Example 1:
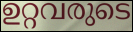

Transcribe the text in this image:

ഉറ്റവരുടെ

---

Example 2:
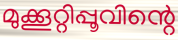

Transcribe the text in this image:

മുക്കൂറ്റിപ്പൂവിന്റെ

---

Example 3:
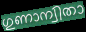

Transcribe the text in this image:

ഗുണാന്വിതാ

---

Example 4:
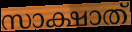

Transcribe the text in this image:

സാക്ഷാത്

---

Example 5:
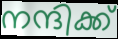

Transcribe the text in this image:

നന്ദിക്ക്